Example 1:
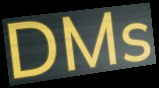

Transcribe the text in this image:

DMs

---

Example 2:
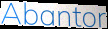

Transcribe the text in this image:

Abantor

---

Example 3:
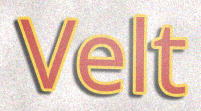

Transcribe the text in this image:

Velt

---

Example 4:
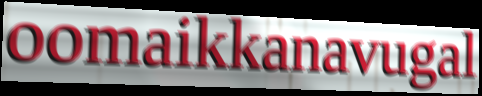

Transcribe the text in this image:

oomaikkanavugal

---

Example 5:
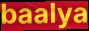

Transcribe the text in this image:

baalya